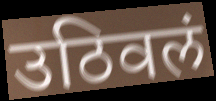
उठिवलं